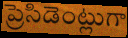
ప్రెసిడెంట్లుగా